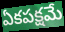
ఏకపక్షమే